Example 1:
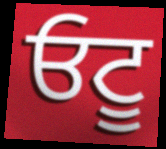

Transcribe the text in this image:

ਓਟੂ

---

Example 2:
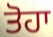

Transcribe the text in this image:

ਤੋਹਾ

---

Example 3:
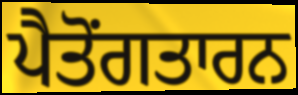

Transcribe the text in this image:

ਪੈਤੋਂਗਤਾਰਨ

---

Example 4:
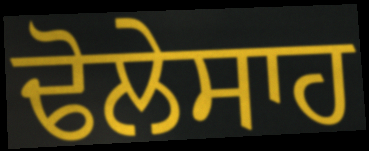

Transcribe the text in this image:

ਢੋਲੇਸਾਹ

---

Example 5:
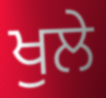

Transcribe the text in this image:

ਖੁਲੇ